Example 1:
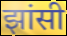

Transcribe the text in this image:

झांसी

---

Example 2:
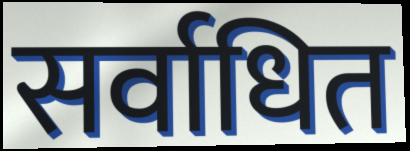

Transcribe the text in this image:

सर्वाधित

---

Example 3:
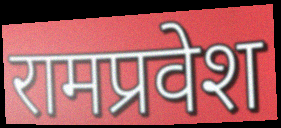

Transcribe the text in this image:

रामप्रवेश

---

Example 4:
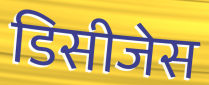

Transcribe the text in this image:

डिसीजेस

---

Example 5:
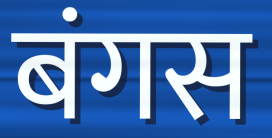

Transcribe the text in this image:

बंगस